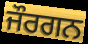
ਜੌਰਗਨ